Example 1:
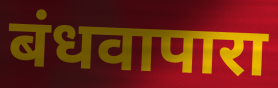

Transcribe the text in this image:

बंधवापारा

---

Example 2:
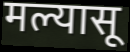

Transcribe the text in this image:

मल्यासू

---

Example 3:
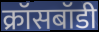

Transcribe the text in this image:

क्रॉसबॉडी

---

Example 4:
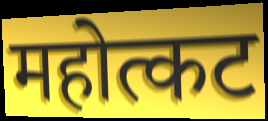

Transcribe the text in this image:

महोत्कट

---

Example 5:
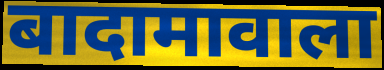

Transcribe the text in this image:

बादामावाला